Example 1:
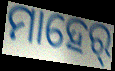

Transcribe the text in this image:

ମାହେର୍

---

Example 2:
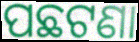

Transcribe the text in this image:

ପଛଟଣା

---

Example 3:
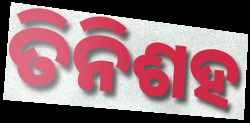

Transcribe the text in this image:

ତିନିଶହ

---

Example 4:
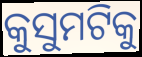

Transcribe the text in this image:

କୁସୁମଟିକୁ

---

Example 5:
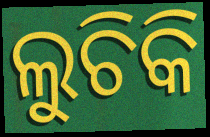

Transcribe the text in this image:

ଲୁଚିକି